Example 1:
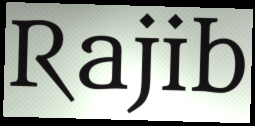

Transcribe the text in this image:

Rajib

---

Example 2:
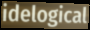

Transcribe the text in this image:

idelogical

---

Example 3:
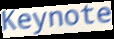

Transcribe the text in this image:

Keynote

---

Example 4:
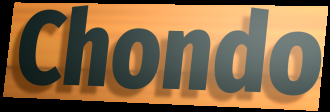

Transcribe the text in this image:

Chondo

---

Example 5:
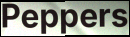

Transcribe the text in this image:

Peppers